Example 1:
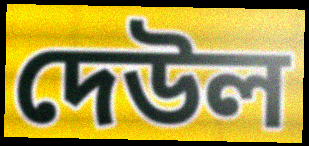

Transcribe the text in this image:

দেউল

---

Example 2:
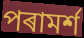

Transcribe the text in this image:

পৰামৰ্শ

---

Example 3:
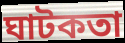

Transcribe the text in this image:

ঘাটকতা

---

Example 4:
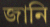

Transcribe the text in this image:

জানি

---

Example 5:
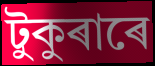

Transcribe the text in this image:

টুকুৰাৰে